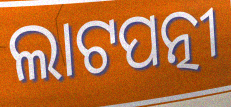
ଲାଟପତ୍ନୀ